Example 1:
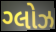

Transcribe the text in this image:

ગ્લોઝ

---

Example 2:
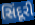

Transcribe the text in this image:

સિંદૂરી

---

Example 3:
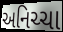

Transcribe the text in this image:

અનિચ્ચા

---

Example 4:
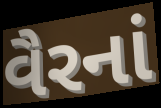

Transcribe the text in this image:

વૈરનાં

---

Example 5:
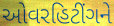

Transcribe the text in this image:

ઓવરહિટીંગને